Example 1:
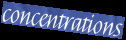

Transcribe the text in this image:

concentrations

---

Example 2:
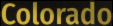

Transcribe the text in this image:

Colorado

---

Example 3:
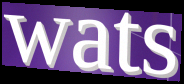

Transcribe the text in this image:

wats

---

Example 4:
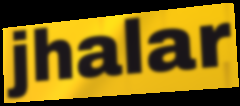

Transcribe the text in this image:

jhalar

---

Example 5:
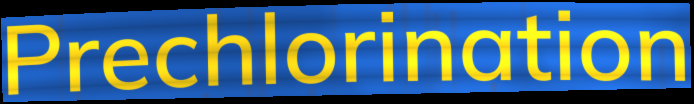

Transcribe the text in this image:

Prechlorination